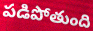
పడిపోతుంది